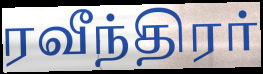
ரவீந்திரர்